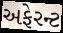
અફેરન્ટ